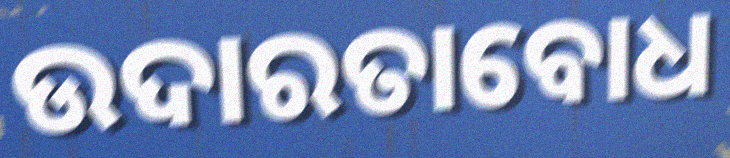
ଉଦାରତାବୋଧ